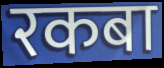
रकबा